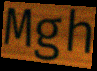
Mgh